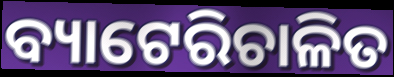
ବ୍ୟାଟେରିଚାଳିତ